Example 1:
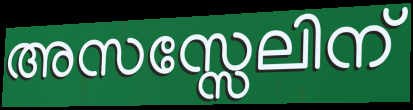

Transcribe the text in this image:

അസസ്സേലിന്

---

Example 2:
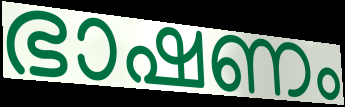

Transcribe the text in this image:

ഭാഷണം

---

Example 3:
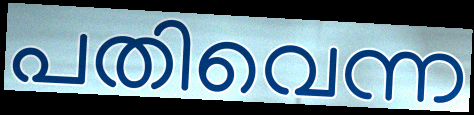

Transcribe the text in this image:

പതിവെന്ന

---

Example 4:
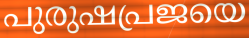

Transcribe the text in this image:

പുരുഷപ്രജയെ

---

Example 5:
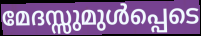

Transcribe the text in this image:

മേദസ്സുമുൾപ്പെടെ